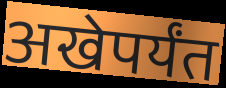
अखेपर्यंत